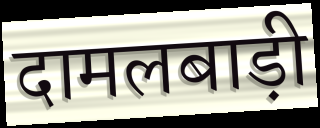
दामलबाड़ी